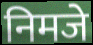
निमजे